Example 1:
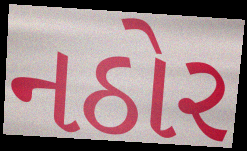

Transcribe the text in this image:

નઠોર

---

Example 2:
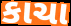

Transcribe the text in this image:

કાચા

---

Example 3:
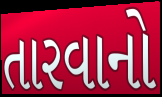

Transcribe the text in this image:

તારવાનો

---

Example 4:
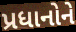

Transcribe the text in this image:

પ્રધાનોને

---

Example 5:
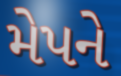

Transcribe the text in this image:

મેપને